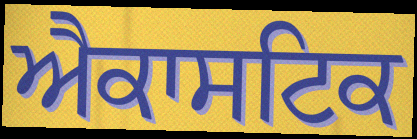
ਐਕਾਸਟਿਕ